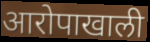
आरोपाखाली